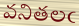
వనితలఁ